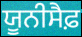
ਯੂਨੀਸੈਫ਼